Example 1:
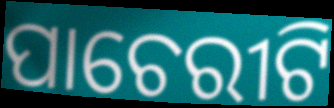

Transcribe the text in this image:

ପାଚେରୀଟି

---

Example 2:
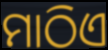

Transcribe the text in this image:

ମାଠିଏ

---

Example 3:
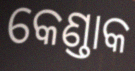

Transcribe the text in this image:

କେଣ୍ଡାକ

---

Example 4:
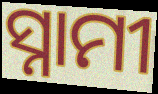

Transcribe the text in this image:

ସ୍ନାମୀ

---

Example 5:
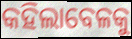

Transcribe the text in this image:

କହିଲାବେଳକୁ